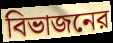
বিভাজনের